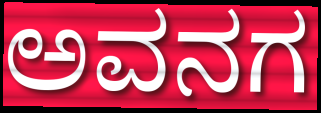
ಅವನಗ